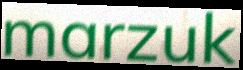
marzuk